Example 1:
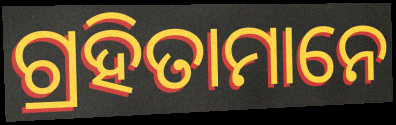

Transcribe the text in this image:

ଗ୍ରହିତାମାନେ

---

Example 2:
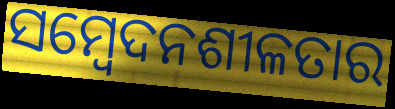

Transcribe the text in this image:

ସମ୍ୱେଦନଶୀଳତାର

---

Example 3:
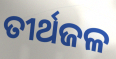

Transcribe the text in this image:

ତୀର୍ଥଜଳ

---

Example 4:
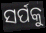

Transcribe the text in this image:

ସର୍ପକୁ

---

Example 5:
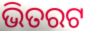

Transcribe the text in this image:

ଭିତରଟ